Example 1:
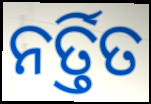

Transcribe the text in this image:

ନର୍ତ୍ତିତ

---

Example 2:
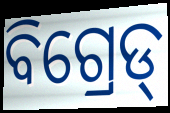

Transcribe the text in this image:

ବିଗ୍ରେଡ୍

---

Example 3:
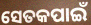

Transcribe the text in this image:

ସେତକପାଇଁ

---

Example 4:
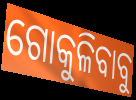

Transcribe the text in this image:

ଗୋକୁଳିବାବୁ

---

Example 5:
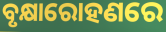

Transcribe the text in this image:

ବୃକ୍ଷାରୋହଣରେ